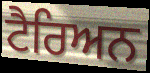
ਟੈਰਿਅਨ